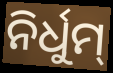
ନିର୍ଧୁମ୍